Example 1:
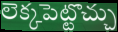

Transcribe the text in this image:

లెక్కపెట్టొచ్చు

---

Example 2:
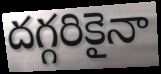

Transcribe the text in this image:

దగ్గరికైనా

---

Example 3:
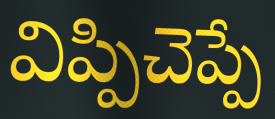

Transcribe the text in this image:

విప్పిచెప్పే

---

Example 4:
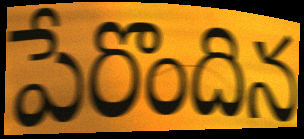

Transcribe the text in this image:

పేరొందిన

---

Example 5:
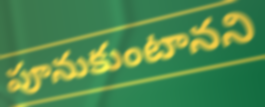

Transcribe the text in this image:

పూనుకుంటానని